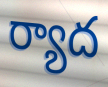
ర్యాద